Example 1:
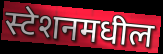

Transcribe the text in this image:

स्टेशनमधील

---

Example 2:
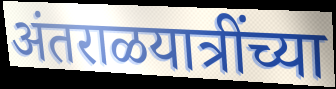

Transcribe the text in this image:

अंतराळयात्रींच्या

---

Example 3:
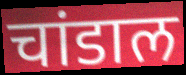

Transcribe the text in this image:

चांडाल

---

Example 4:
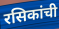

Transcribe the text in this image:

रसिकांची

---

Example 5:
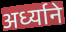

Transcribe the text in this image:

अर्ध्याने